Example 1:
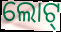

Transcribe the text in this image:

ଲୋଟ୍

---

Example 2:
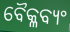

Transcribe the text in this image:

ବୈକ୍ଳବ୍ୟଂ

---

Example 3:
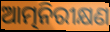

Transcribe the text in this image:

ଆତ୍ମନିରୀକ୍ଷଣ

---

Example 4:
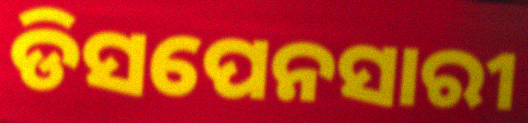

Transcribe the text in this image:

ଡିସପେନସାରୀ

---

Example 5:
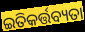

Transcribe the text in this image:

ଇତିକର୍ତ୍ତବ୍ୟତା